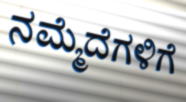
ನಮ್ಮೆದೆಗಳಿಗೆ